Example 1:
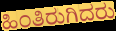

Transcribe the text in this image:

ಹಿಂತಿರುಗಿದರು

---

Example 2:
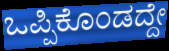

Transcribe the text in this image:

ಒಪ್ಪಿಕೊಂಡದ್ದೇ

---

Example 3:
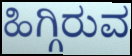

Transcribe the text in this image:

ಹಿಗ್ಗಿರುವ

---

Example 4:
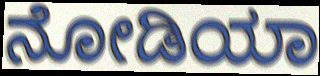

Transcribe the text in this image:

ನೋಡಿಯಾ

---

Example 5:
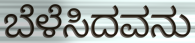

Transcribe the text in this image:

ಬೆಳೆಸಿದವನು